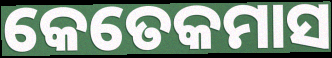
କେତେକମାସ